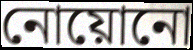
নোয়োনো